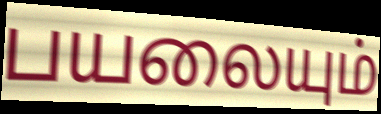
பயலையும்